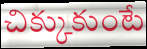
చిక్కుకుంటే